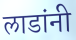
लाडांनी